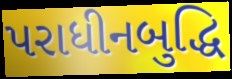
પરાધીનબુદ્ધિ